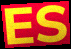
ES